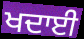
ਖਦਾਈ